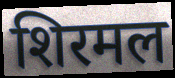
शिरमल